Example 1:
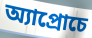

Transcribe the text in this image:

অ্যাপ্রোচে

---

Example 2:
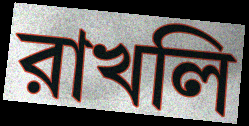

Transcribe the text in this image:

রাখলি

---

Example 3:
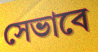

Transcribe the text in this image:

সেভাবে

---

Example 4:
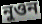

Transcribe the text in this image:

নুওন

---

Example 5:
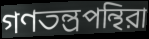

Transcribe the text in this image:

গণতন্ত্রপন্থিরা